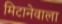
मिटानेवाला